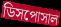
ডিসপোসাল